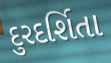
દુરદર્શિતા